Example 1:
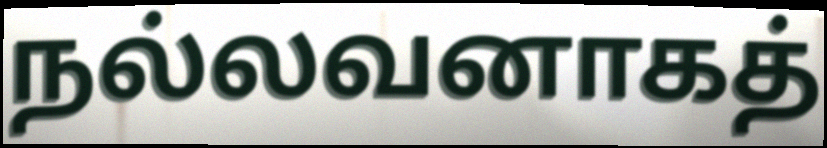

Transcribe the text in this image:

நல்லவனாகத்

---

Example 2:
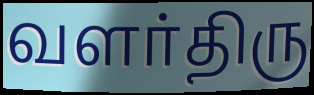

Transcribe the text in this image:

வளர்திரு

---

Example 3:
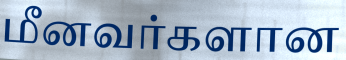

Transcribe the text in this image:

மீனவர்களான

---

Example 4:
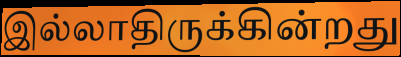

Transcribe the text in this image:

இல்லாதிருக்கின்றது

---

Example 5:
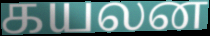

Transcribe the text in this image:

கயலன